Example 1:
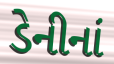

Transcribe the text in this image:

ડેનીનાં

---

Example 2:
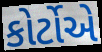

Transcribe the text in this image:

કોર્ટોએ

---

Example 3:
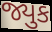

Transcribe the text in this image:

જ્યુક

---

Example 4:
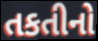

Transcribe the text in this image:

તકતીનો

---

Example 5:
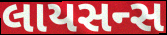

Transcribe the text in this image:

લાયસન્સ